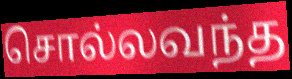
சொல்லவந்த